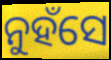
ନୁହଁସେ